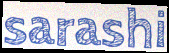
sarashi